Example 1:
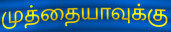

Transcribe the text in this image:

முத்தையாவுக்கு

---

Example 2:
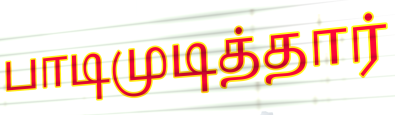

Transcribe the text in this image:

பாடிமுடித்தார்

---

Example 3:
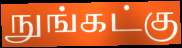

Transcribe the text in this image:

நுங்கட்கு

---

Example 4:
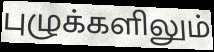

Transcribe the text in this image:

புழுக்களிலும்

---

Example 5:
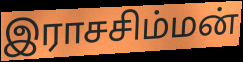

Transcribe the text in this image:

இராசசிம்மன்